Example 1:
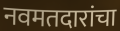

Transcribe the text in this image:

नवमतदारांचा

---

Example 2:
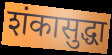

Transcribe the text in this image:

शंकासुद्धा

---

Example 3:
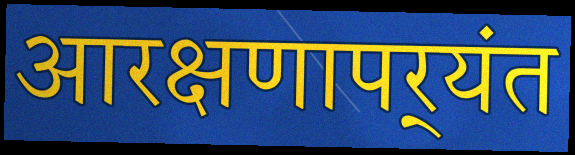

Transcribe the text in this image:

आरक्षणापर्यंत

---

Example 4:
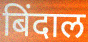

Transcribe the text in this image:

बिंदाल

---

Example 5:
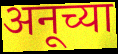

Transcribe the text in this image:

अनूच्या